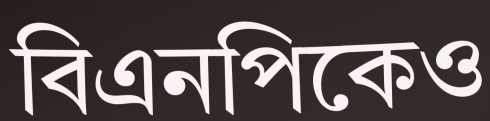
বিএনপিকেও